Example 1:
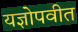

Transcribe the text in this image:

यज्ञोपवीत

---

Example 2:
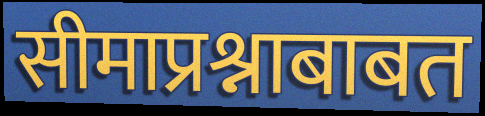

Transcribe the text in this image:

सीमाप्रश्नाबाबत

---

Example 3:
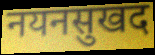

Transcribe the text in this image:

नयनसुखद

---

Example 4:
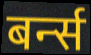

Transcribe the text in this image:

बर्न्स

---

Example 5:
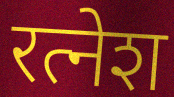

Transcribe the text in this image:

रत्नेश